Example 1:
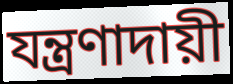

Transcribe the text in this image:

যন্ত্রণাদায়ী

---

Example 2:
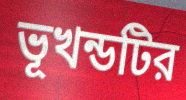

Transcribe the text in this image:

ভূখন্ডটির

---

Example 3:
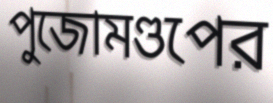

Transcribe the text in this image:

পুজোমণ্ডপের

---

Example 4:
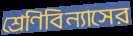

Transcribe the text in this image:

শ্রেণিবিন্যাসের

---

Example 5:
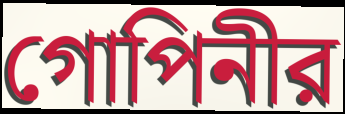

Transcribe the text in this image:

গোপিনীর